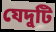
যেদুটি